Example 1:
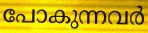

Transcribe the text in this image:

പോകുന്നവർ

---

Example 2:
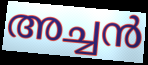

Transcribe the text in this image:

അച്ചൻ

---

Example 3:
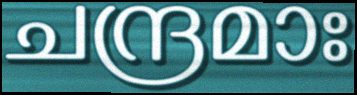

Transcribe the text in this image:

ചന്ദ്രമാഃ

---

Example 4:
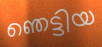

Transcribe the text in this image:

ഞെട്ടിയ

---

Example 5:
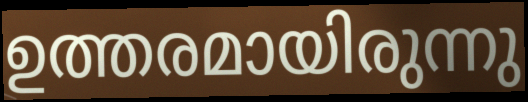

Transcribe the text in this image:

ഉത്തരമായിരുന്നു